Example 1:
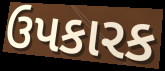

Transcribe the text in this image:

ઉપકારક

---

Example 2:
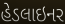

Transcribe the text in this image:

હેડલાઇનર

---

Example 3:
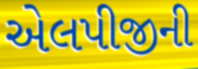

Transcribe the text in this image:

એલપીજીની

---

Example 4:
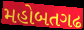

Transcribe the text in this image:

મહોબતગઢ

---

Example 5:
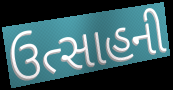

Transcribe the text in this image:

ઉત્સાહની